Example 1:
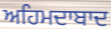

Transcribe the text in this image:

ਅਹਿਮਦਾਬਾਦ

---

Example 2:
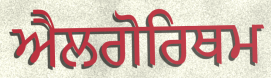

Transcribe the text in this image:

ਐਲਗੋਰਿਥਮ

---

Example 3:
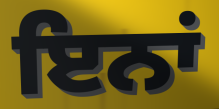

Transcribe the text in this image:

ਇਨਾਂ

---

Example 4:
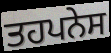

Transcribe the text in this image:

ਤਹਪਨੇਸ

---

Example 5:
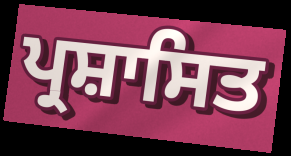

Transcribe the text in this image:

ਪ੍ਰਸ਼ਾਸਿਤ